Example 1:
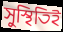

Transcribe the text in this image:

সুস্থিতিই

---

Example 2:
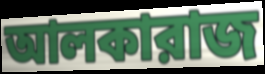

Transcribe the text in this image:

আলকারাজ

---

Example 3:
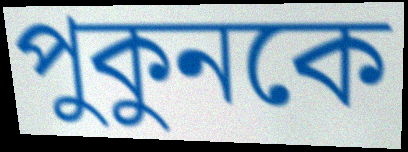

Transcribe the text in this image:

পুকুনকে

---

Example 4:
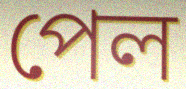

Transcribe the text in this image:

পেল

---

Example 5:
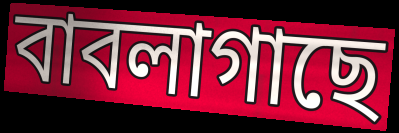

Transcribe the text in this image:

বাবলাগাছে